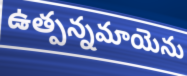
ఉత్పన్నమాయెను